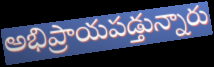
అభిప్రాయపడ్తున్నారు